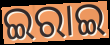
ଇରାଇ